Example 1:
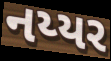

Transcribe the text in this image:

નય્યર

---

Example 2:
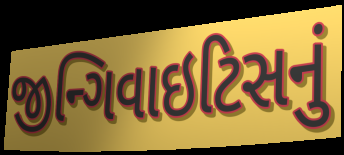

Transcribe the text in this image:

જીન્ગિવાઇટિસનું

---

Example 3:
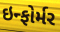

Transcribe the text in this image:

ઇન્ફોર્મર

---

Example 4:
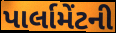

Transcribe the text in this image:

પાર્લામેંટની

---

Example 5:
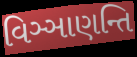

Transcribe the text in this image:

વિઞ્ઞાણન્તિ